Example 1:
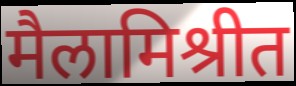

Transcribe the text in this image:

मैलामिश्रीत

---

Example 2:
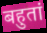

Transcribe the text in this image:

बहुतां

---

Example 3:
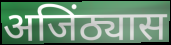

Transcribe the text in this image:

अजिंठ्यास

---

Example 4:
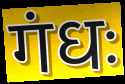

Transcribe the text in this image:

गंधः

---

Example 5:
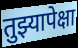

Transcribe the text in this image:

तुझ्यापेक्षा